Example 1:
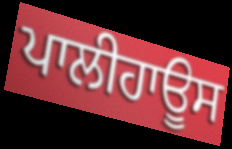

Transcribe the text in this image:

ਪਾਲੀਹਾਊਸ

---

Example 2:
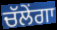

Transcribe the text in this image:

ਚੱਲੇਂਗਾ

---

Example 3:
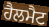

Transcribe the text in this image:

ਹੈਲਮੈਟ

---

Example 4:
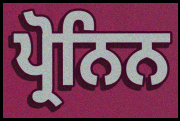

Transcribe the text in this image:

ਪ੍ਰੋਨਿਨ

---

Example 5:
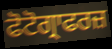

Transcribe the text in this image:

ਫੋਟੋਗ੍ਰਾਫਰਜ਼